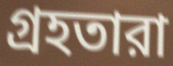
গ্রহতারা